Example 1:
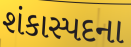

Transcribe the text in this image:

શંકાસ્પદના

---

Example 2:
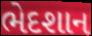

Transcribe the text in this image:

ભેદશાન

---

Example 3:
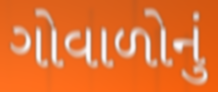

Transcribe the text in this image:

ગોવાળોનું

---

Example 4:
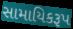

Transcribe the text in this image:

સામાયિકરૂપ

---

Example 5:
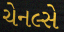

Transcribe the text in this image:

ચેનલ્સે